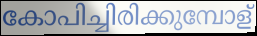
കോപിച്ചിരിക്കുമ്പോള്